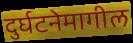
दुर्घटनेमागील